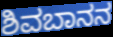
ಶಿವಬಾನನ